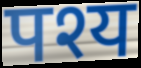
पश्य